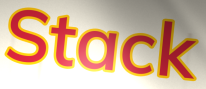
Stack